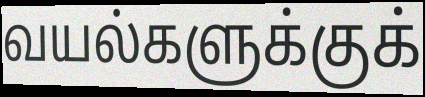
வயல்களுக்குக்